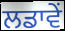
ਲਡਾਵੇਂ